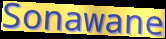
Sonawane